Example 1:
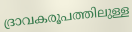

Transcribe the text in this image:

ദ്രാവകരൂപത്തിലുള്ള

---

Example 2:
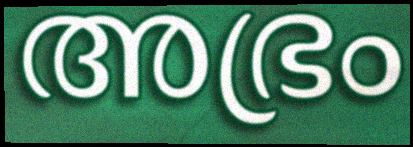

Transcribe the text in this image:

അഭ്രം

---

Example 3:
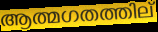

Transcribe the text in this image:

ആത്മഗതത്തില്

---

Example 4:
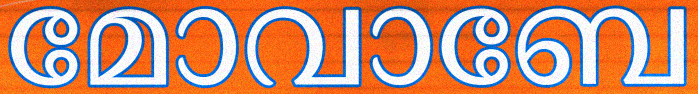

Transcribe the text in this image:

മോവാബേ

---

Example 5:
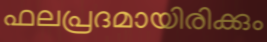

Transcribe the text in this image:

ഫലപ്രദമായിരിക്കും